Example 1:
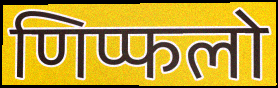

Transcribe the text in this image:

णिप्फलो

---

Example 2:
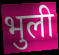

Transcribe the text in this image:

भुली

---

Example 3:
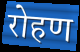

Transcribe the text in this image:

रोहण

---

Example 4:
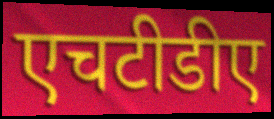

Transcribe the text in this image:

एचटीडीए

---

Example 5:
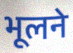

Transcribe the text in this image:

भूलने